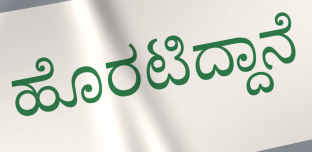
ಹೊರಟಿದ್ದಾನೆ